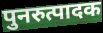
पुनरुत्पादक